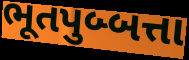
ભૂતપુબ્બત્તા